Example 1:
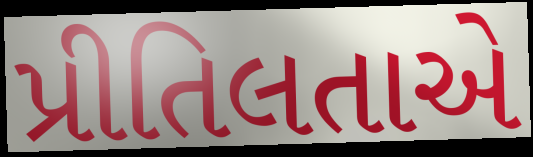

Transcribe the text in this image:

પ્રીતિલતાએ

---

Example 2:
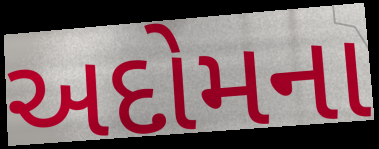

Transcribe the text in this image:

અદોમના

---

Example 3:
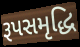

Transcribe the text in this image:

રૂપસમૃદ્ધિ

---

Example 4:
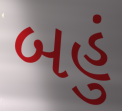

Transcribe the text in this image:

બહું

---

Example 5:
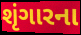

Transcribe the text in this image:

શૃંગારના